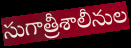
సుగాత్రీశాలీనుల